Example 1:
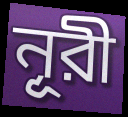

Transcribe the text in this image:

নূরী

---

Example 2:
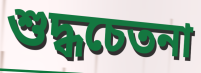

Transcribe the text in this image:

শুদ্ধচেতনা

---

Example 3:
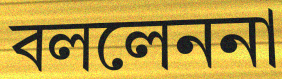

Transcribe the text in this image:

বললেননা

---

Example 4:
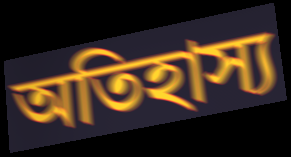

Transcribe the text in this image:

অতিহাস্য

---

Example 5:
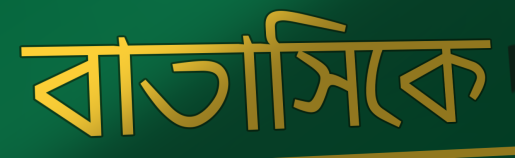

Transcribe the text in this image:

বাতাসিকে